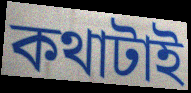
কথাটাই